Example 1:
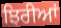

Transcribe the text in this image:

ਝਿਰੀਆਂ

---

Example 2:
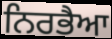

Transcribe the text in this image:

ਨਿਰਭੈਆ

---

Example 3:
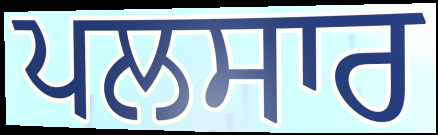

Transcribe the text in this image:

ਪਲਸਾਰ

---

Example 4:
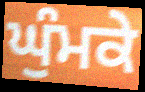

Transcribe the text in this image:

ਘੁੰਮਕੇ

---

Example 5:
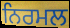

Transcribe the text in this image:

ਨਿਰਮਲ